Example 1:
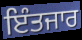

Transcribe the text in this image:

ਇੰਤਜਾਰ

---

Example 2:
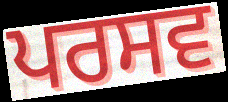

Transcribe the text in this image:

ਪਰਸਵ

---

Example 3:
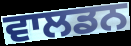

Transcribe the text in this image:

ਵਾਲਡਨ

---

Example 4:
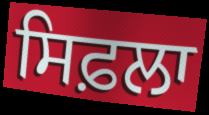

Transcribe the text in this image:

ਸਿਫ਼ਲਾ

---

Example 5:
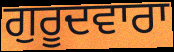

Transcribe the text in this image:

ਗੁਰੂਦਵਾਰਾ